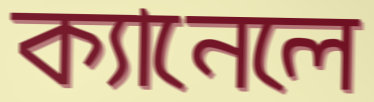
ক্যানেলে